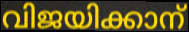
വിജയിക്കാന്